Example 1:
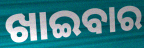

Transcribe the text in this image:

ଖାଇବାର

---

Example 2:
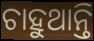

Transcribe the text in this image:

ଚାହୁଥାନ୍ତି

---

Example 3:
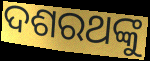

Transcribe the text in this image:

ଦଶରଥଙ୍କୁ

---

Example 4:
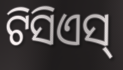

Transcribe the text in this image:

ଟିସିଏସ୍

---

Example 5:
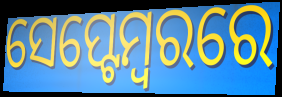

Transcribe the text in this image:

ସେପ୍ଟେମ୍ୱରରେ